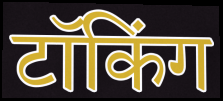
टॉकिंग